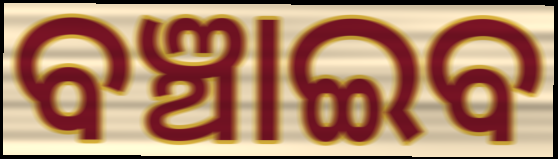
ବଞ୍ଚାଇବ